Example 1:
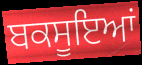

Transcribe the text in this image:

ਬਕਸੂਇਆਂ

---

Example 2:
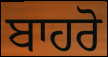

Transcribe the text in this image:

ਬਾਹਰੋ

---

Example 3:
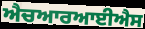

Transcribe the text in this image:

ਐਚਆਰਆਈਐਸ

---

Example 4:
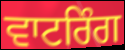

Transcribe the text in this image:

ਵਾਟਰਿੰਗ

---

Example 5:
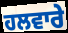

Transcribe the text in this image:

ਹਲਵਾਰੇ